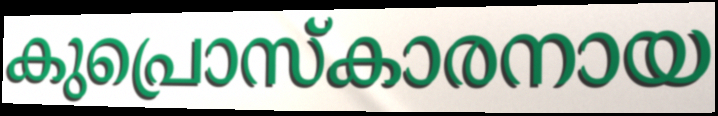
കുപ്രൊസ്കാരനായ